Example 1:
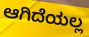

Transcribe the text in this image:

ಆಗಿದೆಯಲ್ಲ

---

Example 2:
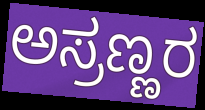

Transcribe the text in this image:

ಅಸ್ರಣ್ಣರ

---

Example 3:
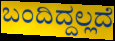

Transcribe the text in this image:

ಬಂದಿದ್ದಲ್ಲದೆ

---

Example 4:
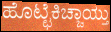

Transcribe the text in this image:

ಹೊಟ್ಟೆಕಿಚ್ಚಾಯ್ತು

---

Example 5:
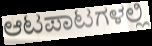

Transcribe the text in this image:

ಆಟಪಾಟಗಳಲ್ಲಿ